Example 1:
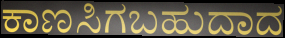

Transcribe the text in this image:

ಕಾಣಸಿಗಬಹುದಾದ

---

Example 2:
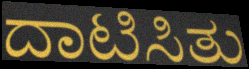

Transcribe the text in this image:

ದಾಟಿಸಿತು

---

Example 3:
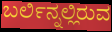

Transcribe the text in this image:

ಬರ್ಲಿನ್ನಲ್ಲಿರುವ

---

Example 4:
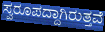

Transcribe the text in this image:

ಸ್ವರೂಪದ್ದಾಗಿರುತ್ತವೆ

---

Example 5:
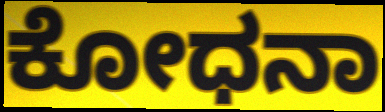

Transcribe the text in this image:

ಕೋಧನಾ